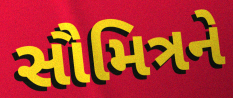
સૌમિત્રને